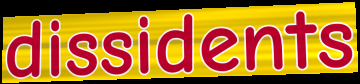
dissidents